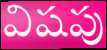
విషపు